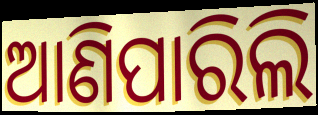
ଆଣିପାରିଲି